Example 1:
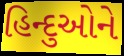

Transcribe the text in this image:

હિન્દુઓને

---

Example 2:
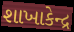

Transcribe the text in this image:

શાખાકેન્દ્ર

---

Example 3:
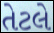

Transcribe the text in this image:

તેટલે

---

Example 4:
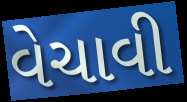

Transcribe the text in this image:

વેચાવી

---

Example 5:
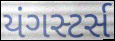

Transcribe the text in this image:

યંગસ્ટર્સ